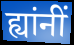
ह्यांनीं